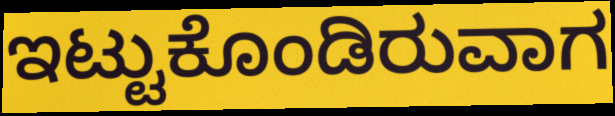
ಇಟ್ಟುಕೊಂಡಿರುವಾಗ